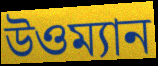
উওম্যান